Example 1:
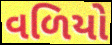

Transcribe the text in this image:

વળિયો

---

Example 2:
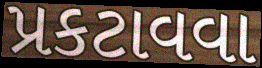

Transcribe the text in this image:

પ્રકટાવવા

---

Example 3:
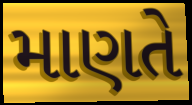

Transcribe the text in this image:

માણતે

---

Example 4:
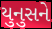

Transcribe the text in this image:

યુનુસને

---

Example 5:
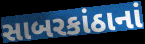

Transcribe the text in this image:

સાબરકાંઠાનાં